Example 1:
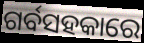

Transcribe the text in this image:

ଗର୍ବସହକାରେ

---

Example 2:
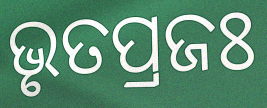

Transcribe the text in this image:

ଭୃତପ୍ରଜଃ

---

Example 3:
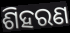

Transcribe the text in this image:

ଶିହରଣ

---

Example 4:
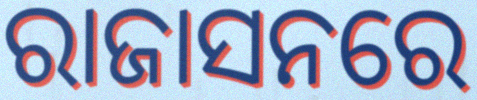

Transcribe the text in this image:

ରାଜାସନରେ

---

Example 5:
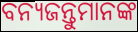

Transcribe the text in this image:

ବନ୍ୟଜନ୍ତୁମାନଙ୍କ